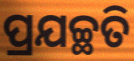
ପ୍ରଯଚ୍ଛତି